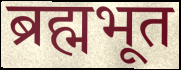
ब्रह्मभूत